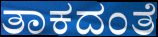
ತಾಕದಂತೆ